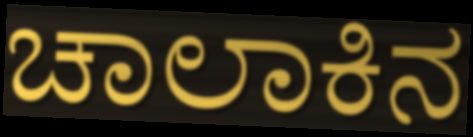
ಚಾಲಾಕಿನ